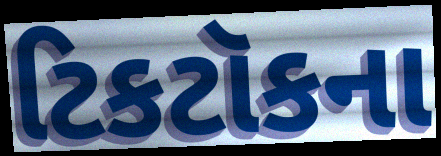
ટિકટૉકના